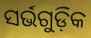
ସର୍ଭଗୁଡ଼ିକ